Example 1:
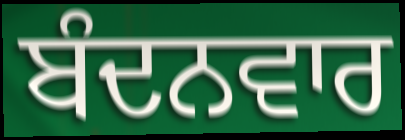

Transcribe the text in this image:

ਬੰਦਨਵਾਰ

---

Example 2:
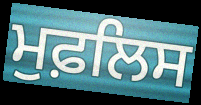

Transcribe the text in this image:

ਮੁਫ਼ਲਿਸ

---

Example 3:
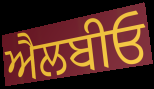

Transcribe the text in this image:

ਐਲਬੀਓ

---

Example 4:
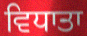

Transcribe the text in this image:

ਵਿਧਾਤਾ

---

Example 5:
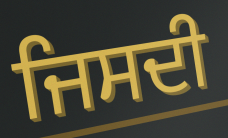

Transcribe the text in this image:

ਜਿਸਦੀ